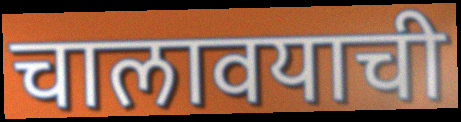
चालावयाची